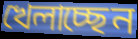
খেলাচ্ছেন